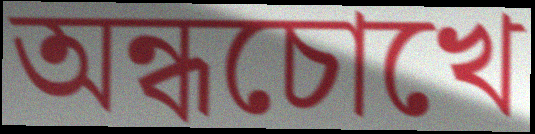
অন্ধচোখে